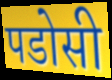
पडोसी